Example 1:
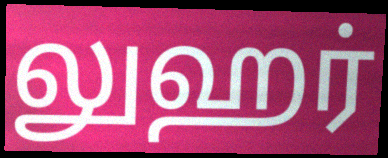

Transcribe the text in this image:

லுஹர்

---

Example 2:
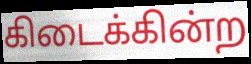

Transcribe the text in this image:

கிடைக்கின்ற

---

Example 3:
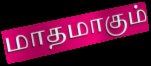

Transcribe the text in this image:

மாதமாகும்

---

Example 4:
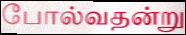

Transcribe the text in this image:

போல்வதன்று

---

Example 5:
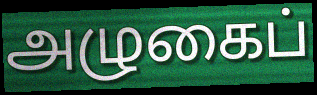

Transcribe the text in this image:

அழுகைப்